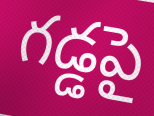
గడ్డపై